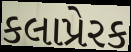
કલાપ્રેરક